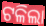
ଟଳିଲା